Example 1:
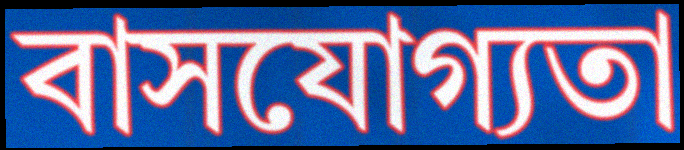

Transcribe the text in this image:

বাসযোগ্যতা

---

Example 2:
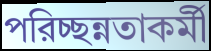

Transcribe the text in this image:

পরিচ্ছন্নতাকর্মী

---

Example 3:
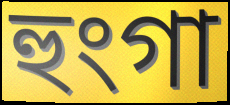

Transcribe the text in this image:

হুংগা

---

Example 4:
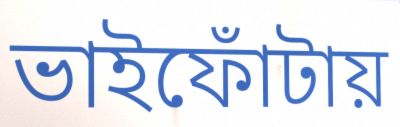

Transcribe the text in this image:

ভাইফোঁটায়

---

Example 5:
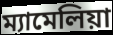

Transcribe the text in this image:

ম্যামেলিয়া